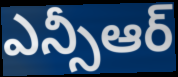
ఎన్సీఆర్